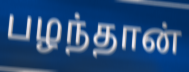
பழந்தான்